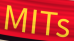
MITs